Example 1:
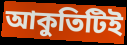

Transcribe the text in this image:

আকুতিটিই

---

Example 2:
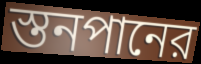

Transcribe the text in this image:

স্তনপানের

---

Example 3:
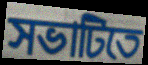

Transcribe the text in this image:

সভাটিতে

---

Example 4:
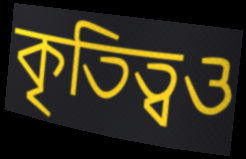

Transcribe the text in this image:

কৃতিত্বও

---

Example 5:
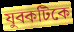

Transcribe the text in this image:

যুবকটিকে